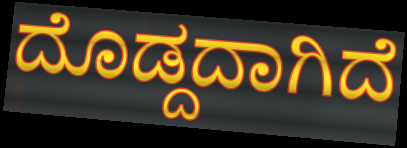
ದೊಡ್ದದಾಗಿದೆ